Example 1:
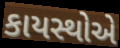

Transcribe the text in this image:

કાયસ્થોએ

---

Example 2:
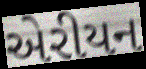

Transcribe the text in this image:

એરીયન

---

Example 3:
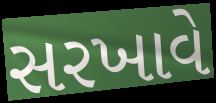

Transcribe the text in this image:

સરખાવે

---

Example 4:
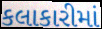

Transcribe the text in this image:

કલાકારીમાં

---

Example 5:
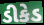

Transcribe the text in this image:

ડીકેડ